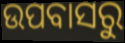
ଉପବାସରୁ